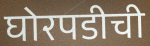
घोरपडीची